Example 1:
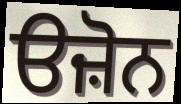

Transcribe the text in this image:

ੳਜ਼ੋਨ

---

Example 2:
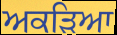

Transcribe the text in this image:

ਅਕੜਿਆ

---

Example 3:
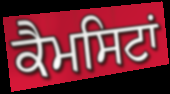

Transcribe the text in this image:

ਕੈਮਸਿਟਾਂ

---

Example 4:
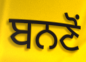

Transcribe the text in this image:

ਬਨਣੋਂ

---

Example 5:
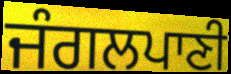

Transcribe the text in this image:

ਜੰਗਲਪਾਣੀ